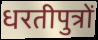
धरतीपुत्रों